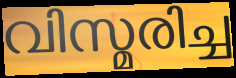
വിസ്മരിച്ച